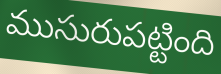
ముసురుపట్టింది